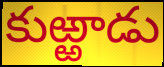
కుఱ్ఱాడు